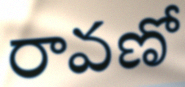
రావణో